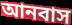
আনবাস